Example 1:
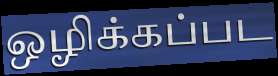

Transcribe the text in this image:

ஒழிக்கப்பட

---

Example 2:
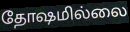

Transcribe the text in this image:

தோஷமில்லை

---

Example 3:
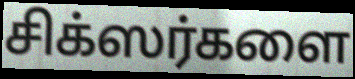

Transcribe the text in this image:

சிக்ஸர்களை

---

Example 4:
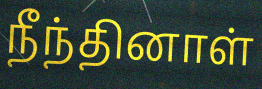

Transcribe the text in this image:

நீந்தினாள்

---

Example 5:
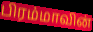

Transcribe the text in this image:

பிரம்மாவின்